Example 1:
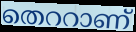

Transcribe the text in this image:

തെററാണ്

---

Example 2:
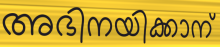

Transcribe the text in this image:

അഭിനയിക്കാന്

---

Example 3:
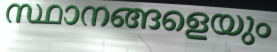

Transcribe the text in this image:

സ്ഥാനങ്ങളെയും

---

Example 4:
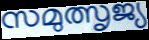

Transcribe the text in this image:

സമുത്സൃജ്യ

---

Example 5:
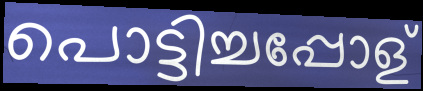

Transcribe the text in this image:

പൊട്ടിച്ചപ്പോള്